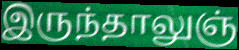
இருந்தாலுஞ்